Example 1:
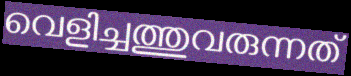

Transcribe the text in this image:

വെളിച്ചത്തുവരുന്നത്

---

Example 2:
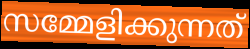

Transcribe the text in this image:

സമ്മേളിക്കുന്നത്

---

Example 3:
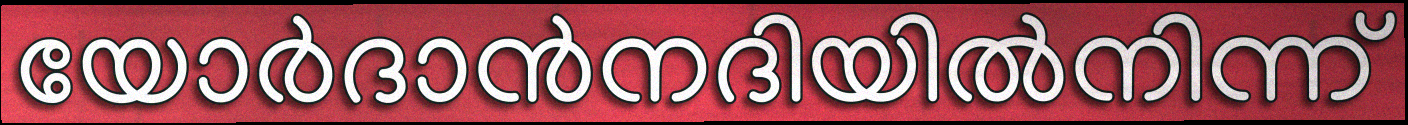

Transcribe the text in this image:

യോർദാൻനദിയിൽനിന്ന്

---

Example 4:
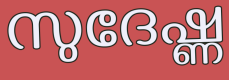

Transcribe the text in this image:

സുദേഷ്ണ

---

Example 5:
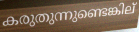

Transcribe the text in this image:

കരുതുന്നുണ്ടെങ്കില്